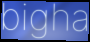
bigha